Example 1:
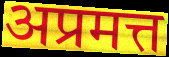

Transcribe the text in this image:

अप्रमत्त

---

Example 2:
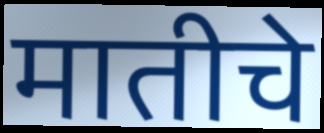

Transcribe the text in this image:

मातीचे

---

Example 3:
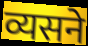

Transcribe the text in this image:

व्यसने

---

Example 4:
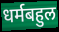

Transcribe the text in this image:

धर्मबहुल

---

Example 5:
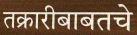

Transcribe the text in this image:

तक्रारीबाबतचे